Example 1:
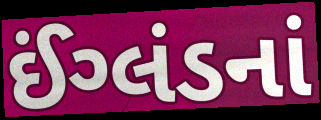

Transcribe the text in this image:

ઈંગ્લંડનાં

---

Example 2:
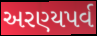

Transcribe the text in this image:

અરણ્યપર્વ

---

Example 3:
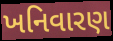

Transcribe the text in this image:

ખનિવારણ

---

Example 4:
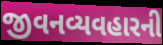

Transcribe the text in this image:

જીવનવ્યવહારની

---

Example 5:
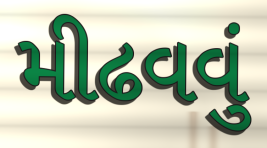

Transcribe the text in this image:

મીઢવવું